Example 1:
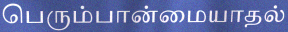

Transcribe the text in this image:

பெரும்பான்மையாதல்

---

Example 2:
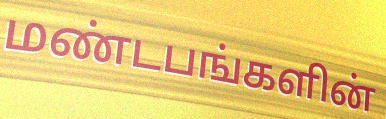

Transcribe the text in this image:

மண்டபங்களின்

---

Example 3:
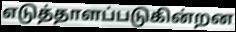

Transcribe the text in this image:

எடுத்தாளப்படுகின்றன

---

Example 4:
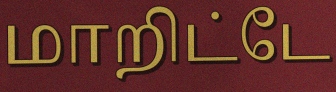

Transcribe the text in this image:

மாறிட்டே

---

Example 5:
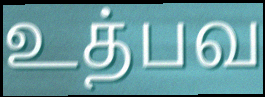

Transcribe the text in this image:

உத்பவ